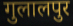
गुलालपुर